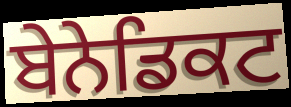
ਬੇਨੇਡਿਕਟ